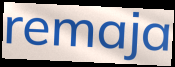
remaja